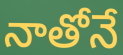
నాతోనే